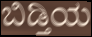
ಬಿಡ್ತಿಯ